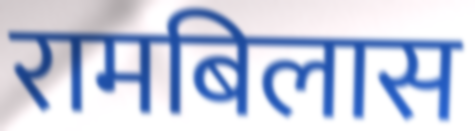
रामबिलास